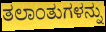
ತಲಾಂತುಗಳನ್ನು